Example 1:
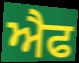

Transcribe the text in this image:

ਐਫ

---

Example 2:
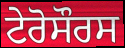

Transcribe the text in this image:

ਟੇਰੋਸੌਰਸ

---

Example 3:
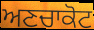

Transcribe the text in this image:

ਅਣਚਾਕੋਟ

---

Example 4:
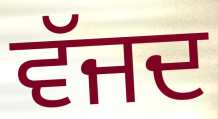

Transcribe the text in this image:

ਵੱਜਦ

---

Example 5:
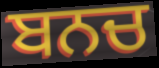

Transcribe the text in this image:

ਬਨਚ